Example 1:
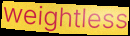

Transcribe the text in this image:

weightless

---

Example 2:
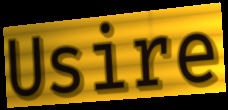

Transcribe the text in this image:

Usire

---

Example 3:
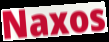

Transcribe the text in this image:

Naxos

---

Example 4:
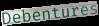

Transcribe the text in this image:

Debentures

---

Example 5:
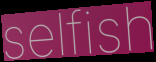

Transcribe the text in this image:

selfish